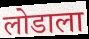
लोडाला